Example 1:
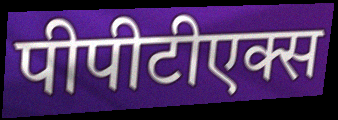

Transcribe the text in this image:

पीपीटीएक्स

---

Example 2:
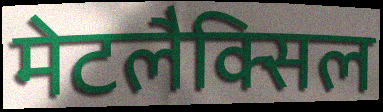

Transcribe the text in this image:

मेटलैक्सिल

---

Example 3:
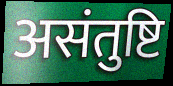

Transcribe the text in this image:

असंतुष्टि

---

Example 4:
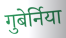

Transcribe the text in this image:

गुबेर्निया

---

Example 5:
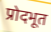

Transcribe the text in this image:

प्रोदभूत